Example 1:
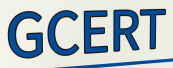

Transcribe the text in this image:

GCERT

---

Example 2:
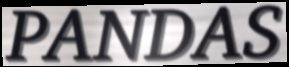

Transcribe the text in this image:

PANDAS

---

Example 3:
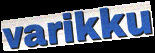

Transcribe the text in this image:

varikku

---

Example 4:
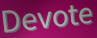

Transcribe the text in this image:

Devote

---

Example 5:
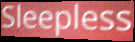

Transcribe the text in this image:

Sleepless